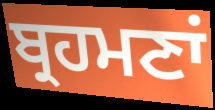
ਬ੍ਰਹਮਣਾਂ